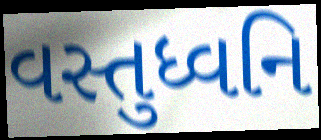
વસ્તુધ્વનિ